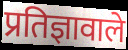
प्रतिज्ञावाले